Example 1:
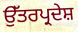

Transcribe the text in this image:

ਉੱਤਰਪ੍ਰਦੇਸ਼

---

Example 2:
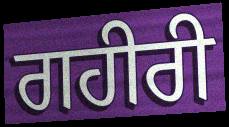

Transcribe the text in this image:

ਗਹੀਰੀ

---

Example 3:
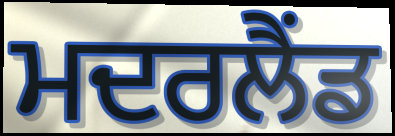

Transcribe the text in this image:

ਮਦਰਲੈਂਡ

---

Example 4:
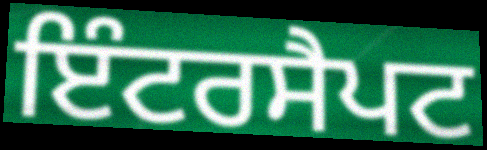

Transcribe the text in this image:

ਇੰਟਰਸੈਪਟ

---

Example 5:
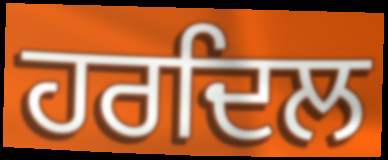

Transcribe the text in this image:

ਹਰਦਿਲ